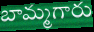
బామ్మగారు